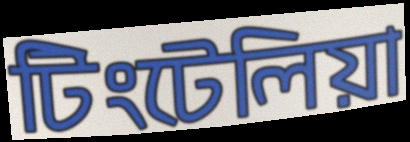
টিংটেলিয়া